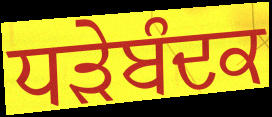
ਧੜੇਬੰਦਕ